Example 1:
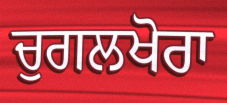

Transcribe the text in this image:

ਚੁਗਲਖੋਰਾ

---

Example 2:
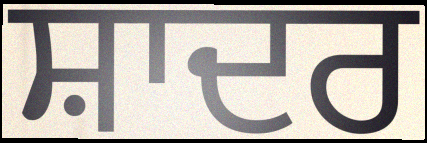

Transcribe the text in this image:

ਸ਼ਾਦਰ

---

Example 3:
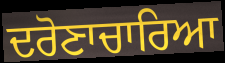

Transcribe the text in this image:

ਦਰੋਣਾਚਾਰਿਆ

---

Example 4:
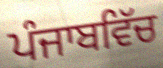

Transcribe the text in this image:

ਪੰਜਾਬਵਿੱਚ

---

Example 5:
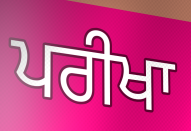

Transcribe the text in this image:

ਪਰੀਖਾ